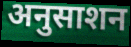
अनुसाशन